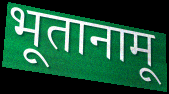
भूतानामू